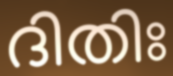
ദിതിഃ